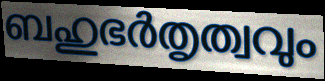
ബഹുഭർതൃത്വവും